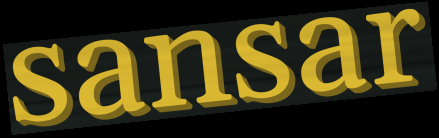
sansar